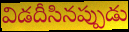
విడదీసినప్పుడు